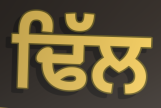
ਢਿੱਲ